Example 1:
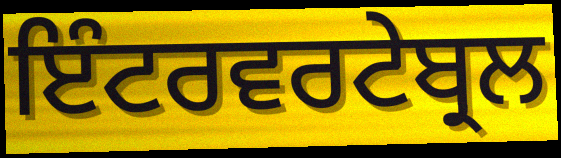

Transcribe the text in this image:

ਇੰਟਰਵਰਟੇਬ੍ਰਲ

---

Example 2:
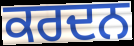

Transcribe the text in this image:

ਕਰਦਨ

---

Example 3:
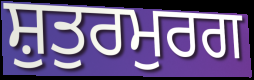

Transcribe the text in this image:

ਸ਼ੁਤੁਰਮੁਰਗ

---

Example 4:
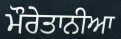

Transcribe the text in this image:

ਮੌਰੇਤਾਨੀਆ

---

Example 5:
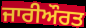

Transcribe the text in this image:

ਜਾਰੀਔਰਤ